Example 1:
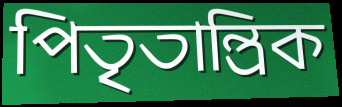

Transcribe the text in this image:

পিতৃতান্ত্রিক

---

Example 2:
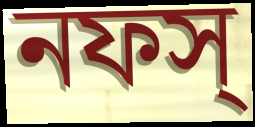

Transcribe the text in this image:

নফস্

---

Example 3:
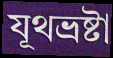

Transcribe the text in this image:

যূথভ্রষ্টা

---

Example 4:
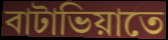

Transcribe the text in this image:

বাটাভিয়াতে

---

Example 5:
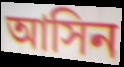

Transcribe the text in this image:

আসিন